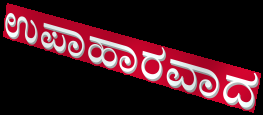
ಉಪಾಹಾರವಾದ